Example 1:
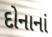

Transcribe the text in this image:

દોનાનાં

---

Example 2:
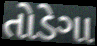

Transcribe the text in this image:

તોડેગા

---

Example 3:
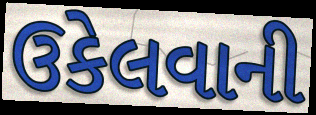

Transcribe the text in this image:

ઉકેલવાની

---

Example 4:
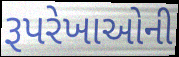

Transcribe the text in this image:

રૂપરેખાઓની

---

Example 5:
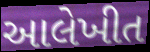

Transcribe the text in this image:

આલેખીત